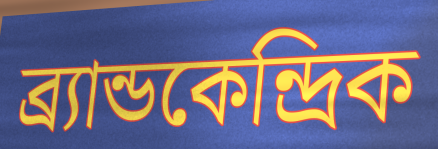
ব্র্যান্ডকেন্দ্রিক